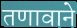
तणावाने